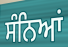
ਸੰਨਿਆਂ